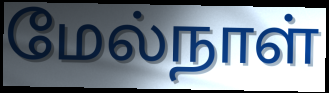
மேல்நாள்